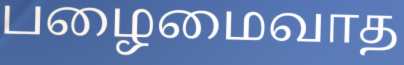
பழைமைவாத